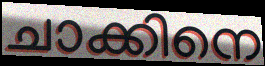
ചാക്കിനെ